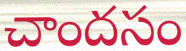
చాందసం